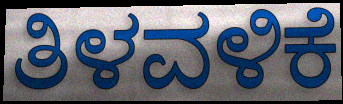
ತಿಳವಳಿಕೆ